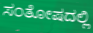
ಸಂತೋಷದಲ್ಲಿ